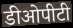
डीओपीटी